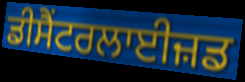
ਡੀਸੈਂਟਰਲਾਈਜ਼ਡ